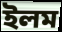
ইলম